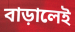
বাড়ালেই